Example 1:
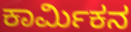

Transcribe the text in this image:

ಕಾರ್ಮಿಕನ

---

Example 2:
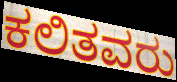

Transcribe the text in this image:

ಕಲಿತವರು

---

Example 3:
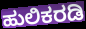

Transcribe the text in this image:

ಹುಲಿಕರಡಿ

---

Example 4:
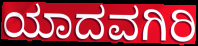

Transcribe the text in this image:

ಯಾದವಗಿರಿ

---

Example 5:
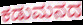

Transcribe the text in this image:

ಕಡುಮನದ